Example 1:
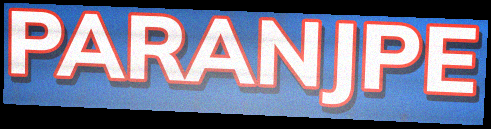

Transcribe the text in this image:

PARANJPE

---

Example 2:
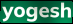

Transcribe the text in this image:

yogesh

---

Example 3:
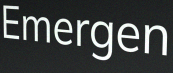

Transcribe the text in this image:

Emergen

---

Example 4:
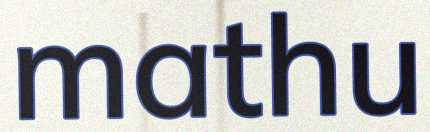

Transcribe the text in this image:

mathu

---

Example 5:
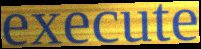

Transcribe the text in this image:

execute